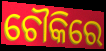
ଚୌକିରେ